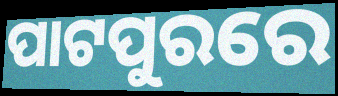
ପାଟପୁରରେ